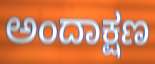
ಅಂದಾಕ್ಷಣ